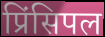
प्रिंसिपल